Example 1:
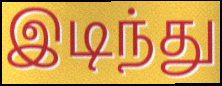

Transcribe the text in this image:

இடிந்து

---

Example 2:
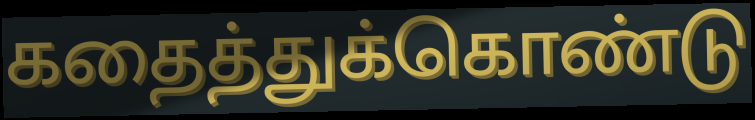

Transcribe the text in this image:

கதைத்துக்கொண்டு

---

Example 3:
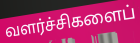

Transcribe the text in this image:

வளர்ச்சிகளைப்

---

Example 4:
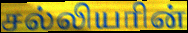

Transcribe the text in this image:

சல்லியரின்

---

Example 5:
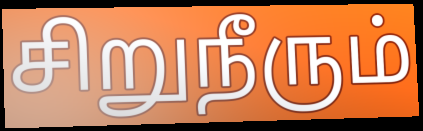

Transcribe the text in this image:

சிறுநீரும்